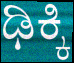
ಢಿಕ್ಕಿ